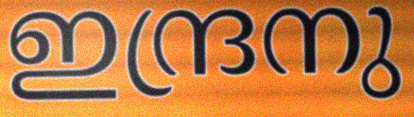
ഇന്ദ്രനു